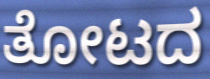
ತೋಟದ